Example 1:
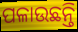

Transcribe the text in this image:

ପଳାଉଛନ୍ତି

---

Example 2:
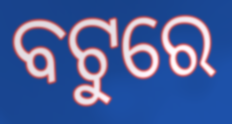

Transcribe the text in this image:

ବଟୁରେ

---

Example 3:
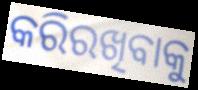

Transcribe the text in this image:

କରିରଖିବାକୁ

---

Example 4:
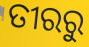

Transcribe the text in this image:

ତୀରରୁ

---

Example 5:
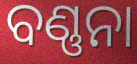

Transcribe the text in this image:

ବଣ୍ଣନା